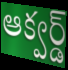
ఆక్వర్డ్